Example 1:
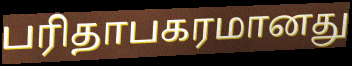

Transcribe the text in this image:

பரிதாபகரமானது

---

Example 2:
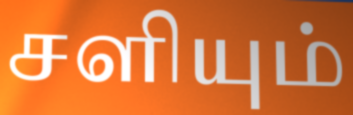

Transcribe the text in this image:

சளியும்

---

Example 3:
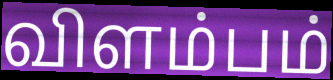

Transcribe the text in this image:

விளம்பம்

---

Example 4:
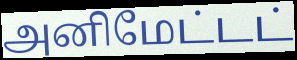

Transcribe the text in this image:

அனிமேட்டட்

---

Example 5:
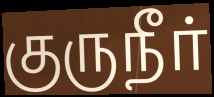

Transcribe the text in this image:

குருநீர்